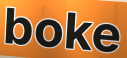
boke